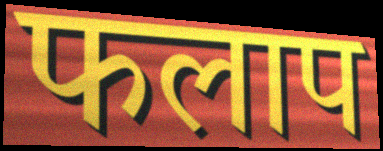
फलाप